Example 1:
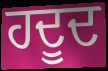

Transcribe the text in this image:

ਹਦੂਦ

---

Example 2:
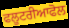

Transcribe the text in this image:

ਫਲੂਟਰੀਆਫੋਲ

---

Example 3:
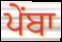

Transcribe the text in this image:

ਪੇਂਬਾ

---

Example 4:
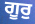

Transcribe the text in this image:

ਗੂਰੁ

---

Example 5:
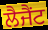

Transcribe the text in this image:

ਲੈਜੈਂਟ